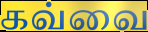
கவ்வை